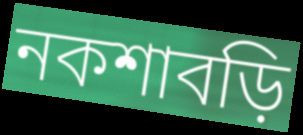
নকশাবড়ি